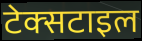
टेक्‍सटाइल